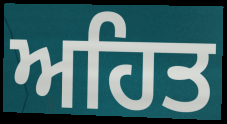
ਅਹਿਤ